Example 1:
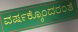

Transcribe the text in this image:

ವರ್ಷಕ್ಕೊಂದರಂತೆ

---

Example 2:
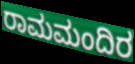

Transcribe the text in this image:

ರಾಮಮಂದಿರ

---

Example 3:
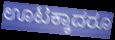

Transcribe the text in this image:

ಊಟಕ್ಕಾದರೂ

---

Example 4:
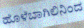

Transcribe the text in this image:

ಹೊಳೆಬಾಗಿಲಿನಿಂದ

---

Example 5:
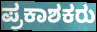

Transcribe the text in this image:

ಪ್ರಕಾಶಕರು